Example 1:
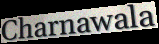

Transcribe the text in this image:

Charnawala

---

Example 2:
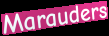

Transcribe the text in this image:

Marauders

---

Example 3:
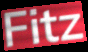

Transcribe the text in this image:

Fitz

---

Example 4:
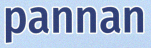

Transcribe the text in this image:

pannan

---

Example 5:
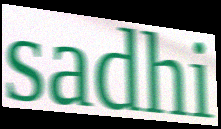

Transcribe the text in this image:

sadhi